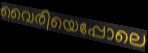
വൈരിയെപ്പോലെ